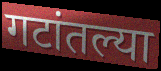
गटांतल्या